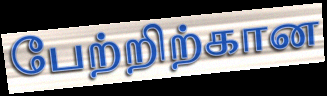
பேற்றிற்கான